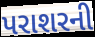
પરાશરની